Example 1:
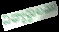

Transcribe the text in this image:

విధ్యార్ధులము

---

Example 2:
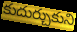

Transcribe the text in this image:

కుదుర్చుకుని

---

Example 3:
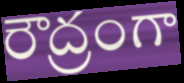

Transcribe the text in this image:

రౌద్రంగా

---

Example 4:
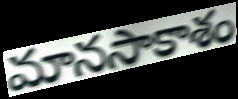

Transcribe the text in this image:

మానసాకాశం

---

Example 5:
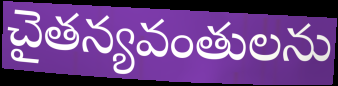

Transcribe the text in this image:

చైతన్యవంతులను